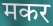
मकर